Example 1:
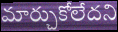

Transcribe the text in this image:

మార్చుకోలేదని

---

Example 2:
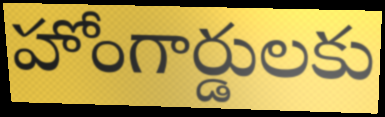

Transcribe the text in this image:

హోంగార్డులకు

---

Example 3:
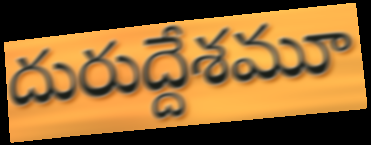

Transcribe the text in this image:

దురుద్దేశమూ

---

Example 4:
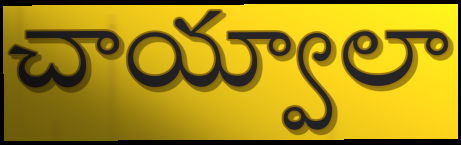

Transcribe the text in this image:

చాయ్వాలా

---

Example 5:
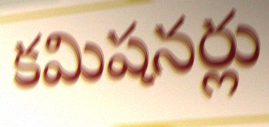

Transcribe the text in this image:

కమిషనర్లు